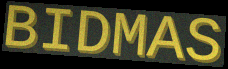
BIDMAS